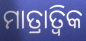
ମାତ୍ରାତ୍ଵିକ